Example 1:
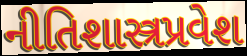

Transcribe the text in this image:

નીતિશાસ્ત્રપ્રવેશ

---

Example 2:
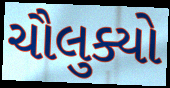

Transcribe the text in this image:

ચૌલુક્યો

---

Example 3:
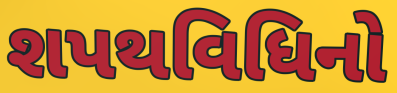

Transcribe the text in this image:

શપથવિધિનો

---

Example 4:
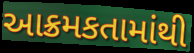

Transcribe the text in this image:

આક્રમકતામાંથી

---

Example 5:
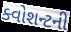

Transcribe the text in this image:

ક્વોશન્ટની